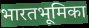
भारतभूमिका